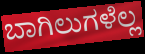
ಬಾಗಿಲುಗಳೆಲ್ಲ